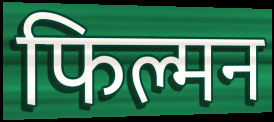
फिल्मन